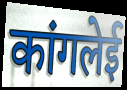
कांगलेई